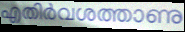
എതിർവശത്താണു